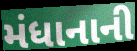
મંધાનાની